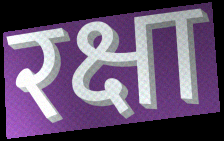
रक्षा